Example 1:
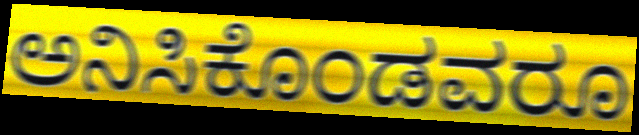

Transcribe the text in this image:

ಅನಿಸಿಕೊಂಡವರೂ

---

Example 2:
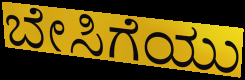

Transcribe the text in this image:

ಬೇಸಿಗೆಯು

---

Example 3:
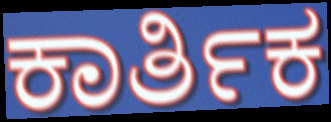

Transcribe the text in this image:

ಕಾರ್ತಿಕ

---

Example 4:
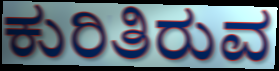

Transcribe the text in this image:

ಕುರಿತಿರುವ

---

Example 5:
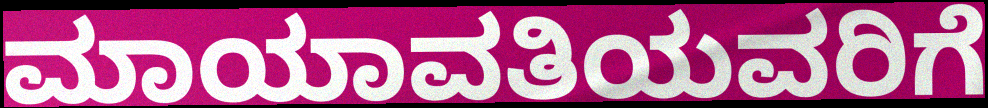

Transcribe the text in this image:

ಮಾಯಾವತಿಯವರಿಗೆ